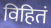
विहितं